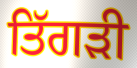
ਤਿੱਗੜੀ